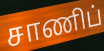
சாணிப்